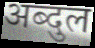
अब्दुल